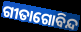
ଗୀତାଗୋବିନ୍ଦ